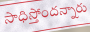
సాధిస్తోందన్నారు